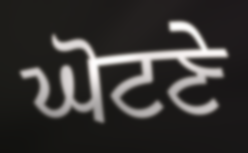
ਘੋਟਣੇ